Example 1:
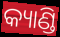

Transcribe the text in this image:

କ୍ୟାଣ୍ଡି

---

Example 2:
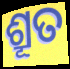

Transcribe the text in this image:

ଶ୍ରୂତ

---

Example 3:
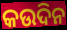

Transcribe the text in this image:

କଉଦିନ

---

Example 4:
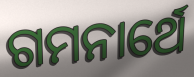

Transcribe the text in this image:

ଗମନାର୍ଥେ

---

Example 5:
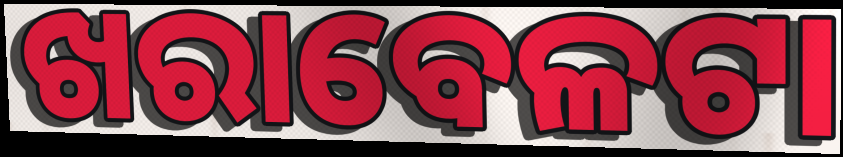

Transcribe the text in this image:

ଖରାବେଳଟା